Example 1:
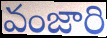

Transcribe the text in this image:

వంజారి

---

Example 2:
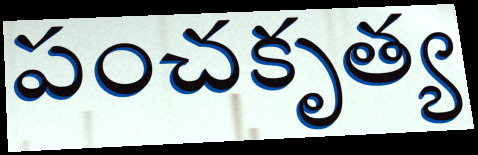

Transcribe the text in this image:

పంచకృత్య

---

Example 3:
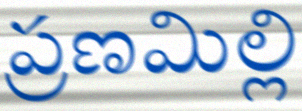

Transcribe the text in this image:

ప్రణమిల్లి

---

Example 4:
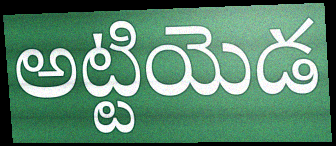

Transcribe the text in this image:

అట్టియెడ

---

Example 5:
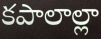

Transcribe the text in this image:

కపాలాల్లా